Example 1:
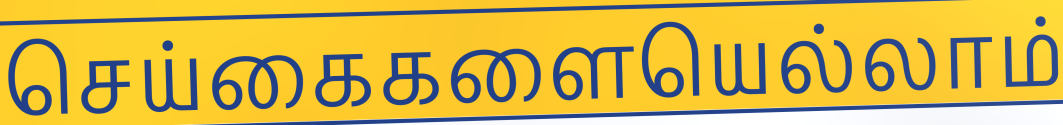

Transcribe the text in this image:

செய்கைகளையெல்லாம்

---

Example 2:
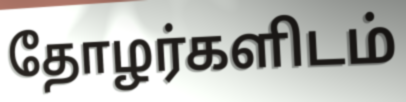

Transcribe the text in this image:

தோழர்களிடம்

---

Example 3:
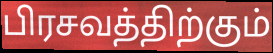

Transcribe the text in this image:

பிரசவத்திற்கும்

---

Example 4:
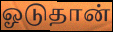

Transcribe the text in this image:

ஓடுதான்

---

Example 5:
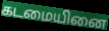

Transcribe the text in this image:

கடமையினை